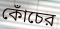
কোঁচের